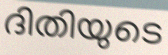
ദിതിയുടെ